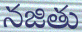
నజితు